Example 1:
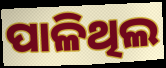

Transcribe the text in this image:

ପାଳିଥିଲ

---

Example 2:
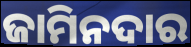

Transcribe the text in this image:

ଜାମିନଦାର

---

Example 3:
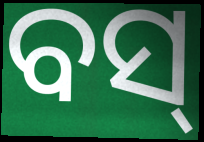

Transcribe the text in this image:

ବସ୍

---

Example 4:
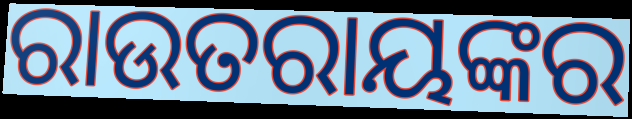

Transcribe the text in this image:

ରାଉତରାୟଙ୍କର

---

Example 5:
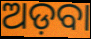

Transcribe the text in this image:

ଅଡ଼ବା